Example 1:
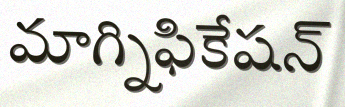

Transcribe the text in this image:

మాగ్నిఫికేషన్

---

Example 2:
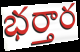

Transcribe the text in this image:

భర్తార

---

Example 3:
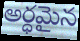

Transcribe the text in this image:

అర్ధమైన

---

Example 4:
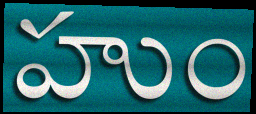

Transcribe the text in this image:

హుం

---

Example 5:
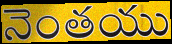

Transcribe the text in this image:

నెంతయు